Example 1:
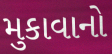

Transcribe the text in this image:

મુકાવાનો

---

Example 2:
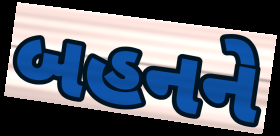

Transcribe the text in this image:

બહનને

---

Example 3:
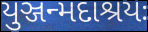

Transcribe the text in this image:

યુઞ્જન્મદાશ્રયઃ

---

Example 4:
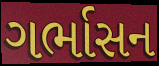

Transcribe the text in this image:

ગર્ભાસન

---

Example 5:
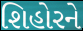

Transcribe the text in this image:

શિહોરને